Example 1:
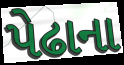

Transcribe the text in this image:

પેઢાના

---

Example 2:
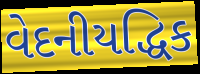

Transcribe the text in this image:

વેદનીયદ્ધિક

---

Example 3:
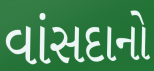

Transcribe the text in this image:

વાંસદાનો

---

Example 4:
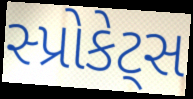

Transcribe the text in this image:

સ્પ્રોકેટ્સ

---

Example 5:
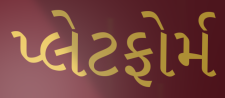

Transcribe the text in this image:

પ્લેટફોર્મ